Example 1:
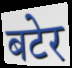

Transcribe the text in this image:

बटेर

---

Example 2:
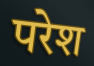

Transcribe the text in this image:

परेश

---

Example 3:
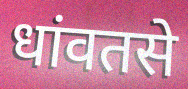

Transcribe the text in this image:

धांवतसे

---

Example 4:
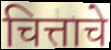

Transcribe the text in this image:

चित्ताचे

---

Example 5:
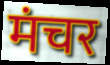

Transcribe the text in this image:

मंचर